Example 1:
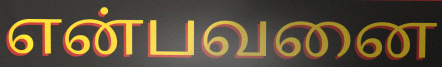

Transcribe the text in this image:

என்பவனை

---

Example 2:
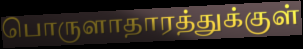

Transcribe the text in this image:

பொருளாதாரத்துக்குள்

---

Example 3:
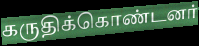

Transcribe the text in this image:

கருதிக்கொண்டனர்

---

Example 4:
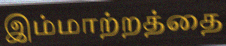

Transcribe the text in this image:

இம்மாற்றத்தை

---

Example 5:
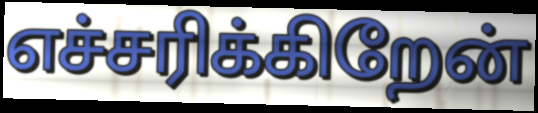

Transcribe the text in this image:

எச்சரிக்கிறேன்